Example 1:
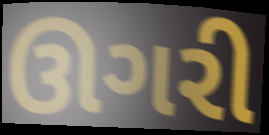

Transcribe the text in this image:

ઊગરી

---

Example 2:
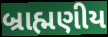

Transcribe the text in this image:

બ્રાહ્મણીય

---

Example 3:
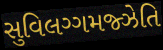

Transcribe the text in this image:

સુવિલગ્ગમજ્ઝેતિ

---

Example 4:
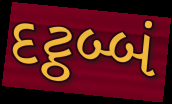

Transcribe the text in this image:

દટ્ઠબ્બં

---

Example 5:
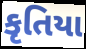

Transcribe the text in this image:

કૃતિયા